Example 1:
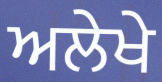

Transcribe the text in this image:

ਅਲੇਖੇ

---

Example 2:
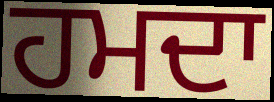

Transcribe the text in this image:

ਹਮਦਾ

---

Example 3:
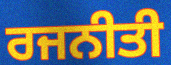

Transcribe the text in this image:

ਰਜਨੀਤੀ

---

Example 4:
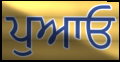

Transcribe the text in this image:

ਪੁਆਓ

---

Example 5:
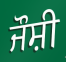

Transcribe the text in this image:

ਜੌਸ਼ੀ